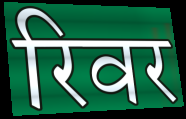
रिवर